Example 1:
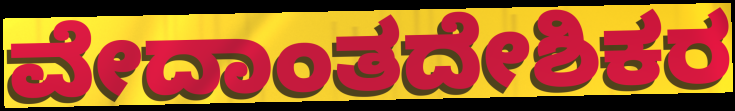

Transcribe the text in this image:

ವೇದಾಂತದೇಶಿಕರ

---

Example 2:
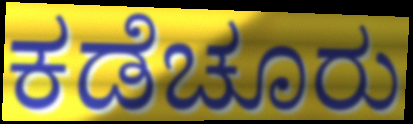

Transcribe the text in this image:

ಕಡೆಚೂರು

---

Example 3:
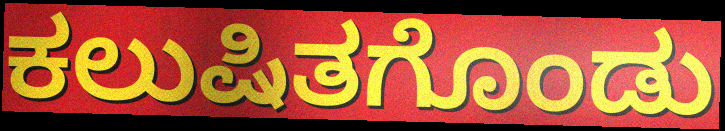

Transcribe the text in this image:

ಕಲುಷಿತಗೊಂಡು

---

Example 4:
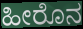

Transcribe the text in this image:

ಹೀರೊನ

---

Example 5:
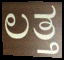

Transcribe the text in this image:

ಲತ್ತ